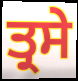
ਤ੍ਰਸੇ